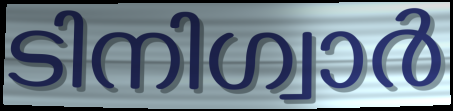
ടിനിഗ്വാർ